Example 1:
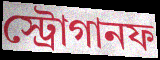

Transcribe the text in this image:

স্ট্রোগানফ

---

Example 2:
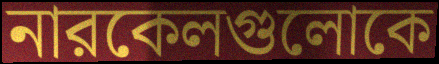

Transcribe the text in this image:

নারকেলগুলোকে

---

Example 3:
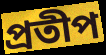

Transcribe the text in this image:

প্রতীপ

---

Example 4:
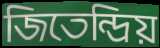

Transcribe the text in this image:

জিতেন্দ্রিয়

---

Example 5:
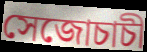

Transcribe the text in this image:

সেজোচাচী